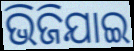
ଭିଜିଯାଇ